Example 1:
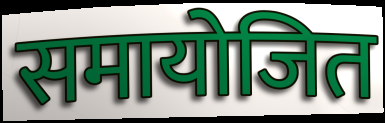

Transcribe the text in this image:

समायोजित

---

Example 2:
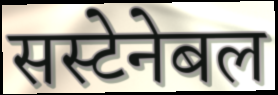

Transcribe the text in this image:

सस्टेनेबल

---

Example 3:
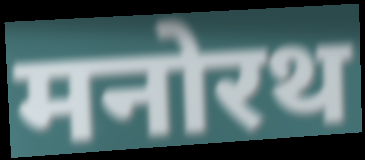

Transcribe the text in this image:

मनोरथ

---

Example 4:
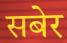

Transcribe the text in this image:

सबेर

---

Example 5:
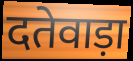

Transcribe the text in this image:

दतेवाड़ा